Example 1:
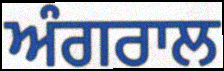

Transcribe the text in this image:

ਅੰਗਰਾਲ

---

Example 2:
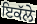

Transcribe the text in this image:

ਇਕੱਲੇ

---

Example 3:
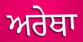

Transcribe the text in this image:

ਅਰੇਥਾ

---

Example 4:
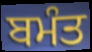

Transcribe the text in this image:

ਬਮੰਤ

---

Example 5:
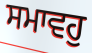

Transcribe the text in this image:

ਸਮਾਵਹੁ